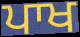
ਪਾਖ